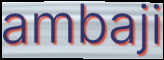
ambaji